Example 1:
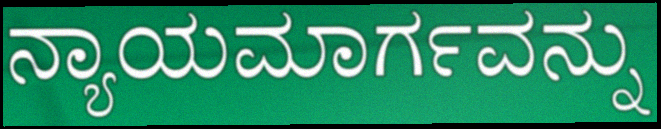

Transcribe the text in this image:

ನ್ಯಾಯಮಾರ್ಗವನ್ನು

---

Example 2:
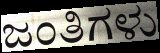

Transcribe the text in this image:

ಜಂತಿಗಳು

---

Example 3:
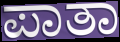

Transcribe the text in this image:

ಪಾತಾ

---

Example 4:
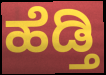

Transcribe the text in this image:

ಹೆಡ್ತಿ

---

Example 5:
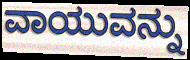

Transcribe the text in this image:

ವಾಯುವನ್ನು